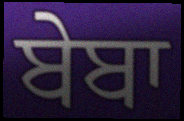
ਬੇਬਾ